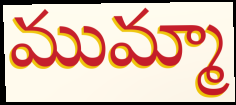
ముమ్మా